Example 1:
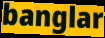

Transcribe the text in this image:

banglar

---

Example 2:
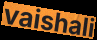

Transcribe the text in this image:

vaishali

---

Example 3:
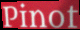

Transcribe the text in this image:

Pinot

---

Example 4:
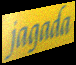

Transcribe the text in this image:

jagada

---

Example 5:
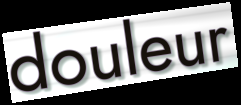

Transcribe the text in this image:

douleur